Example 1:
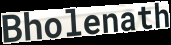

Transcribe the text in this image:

Bholenath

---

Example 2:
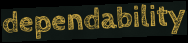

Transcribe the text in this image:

dependability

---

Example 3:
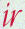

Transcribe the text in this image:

ir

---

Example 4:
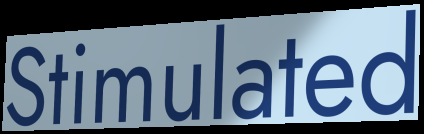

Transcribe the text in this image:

Stimulated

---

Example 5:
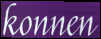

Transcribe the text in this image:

konnen